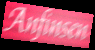
Anfinsen